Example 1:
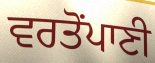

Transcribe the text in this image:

ਵਰਤੋਂਪਾਣੀ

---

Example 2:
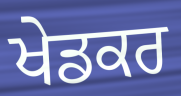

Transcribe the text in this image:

ਖੇਡਕਰ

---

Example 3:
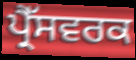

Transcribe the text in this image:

ਪ੍ਰੈੱਸਵਰਕ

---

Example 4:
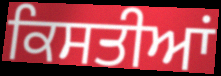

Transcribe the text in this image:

ਕਿਸਤੀਆਂ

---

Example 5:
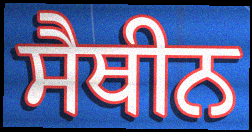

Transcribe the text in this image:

ਸੈਥੀਨ